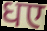
धए